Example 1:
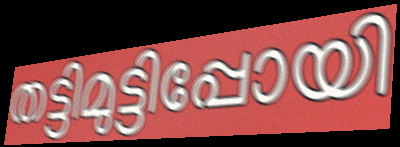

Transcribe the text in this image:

തട്ടിമുട്ടിപ്പോയി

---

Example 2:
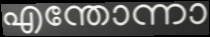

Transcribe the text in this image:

എന്തോന്നാ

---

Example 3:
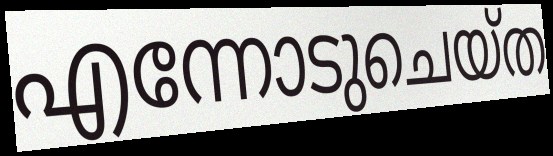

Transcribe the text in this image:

എന്നോടുചെയ്ത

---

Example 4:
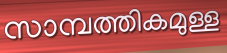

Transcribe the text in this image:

സാമ്പത്തികമുള്ള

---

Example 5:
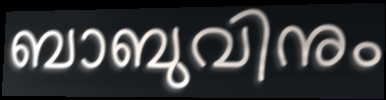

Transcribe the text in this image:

ബാബുവിനും